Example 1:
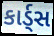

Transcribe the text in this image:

કાર્ડ્સ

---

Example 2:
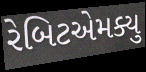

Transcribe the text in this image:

રેબિટએમક્યુ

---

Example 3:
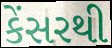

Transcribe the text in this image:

કેંસરથી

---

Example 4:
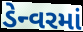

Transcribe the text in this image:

ડેન્વરમાં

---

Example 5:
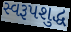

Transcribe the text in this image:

સ્વરૂપશુદ્ધ